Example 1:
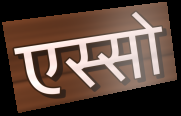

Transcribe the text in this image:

एस्सो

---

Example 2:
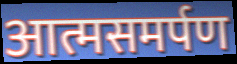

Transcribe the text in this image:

आत्‍मसमर्पण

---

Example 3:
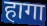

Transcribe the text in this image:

हागा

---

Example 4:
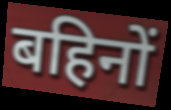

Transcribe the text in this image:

बहिनों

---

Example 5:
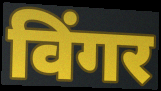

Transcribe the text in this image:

विंगर